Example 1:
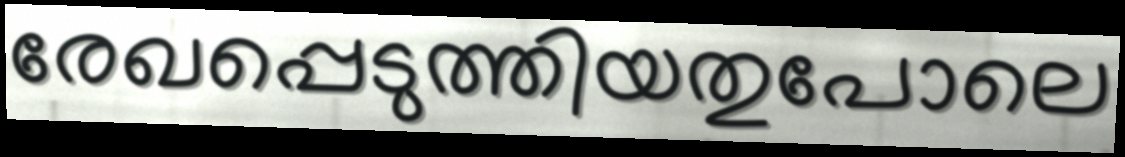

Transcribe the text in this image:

രേഖപ്പെടുത്തിയതുപോലെ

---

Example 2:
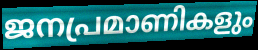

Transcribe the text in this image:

ജനപ്രമാണികളും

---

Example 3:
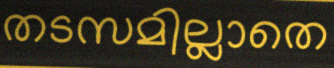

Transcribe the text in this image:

തടസമില്ലാതെ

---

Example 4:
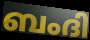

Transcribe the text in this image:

ബംദി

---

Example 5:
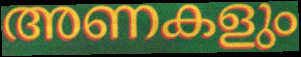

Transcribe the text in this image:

അണകളും